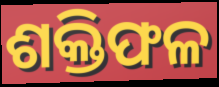
ଶକ୍ତିଫଳ